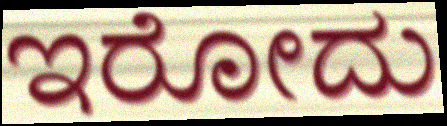
ಇರೋದು